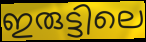
ഇരുട്ടിലെ